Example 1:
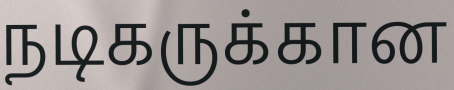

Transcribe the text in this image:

நடிகருக்கான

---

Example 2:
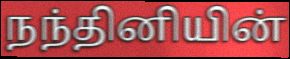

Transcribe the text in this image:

நந்தினியின்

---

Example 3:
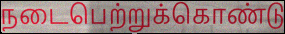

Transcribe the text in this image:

நடைபெற்றுக்கொண்டு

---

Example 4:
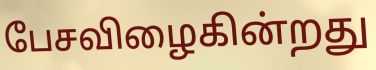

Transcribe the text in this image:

பேசவிழைகின்றது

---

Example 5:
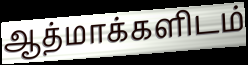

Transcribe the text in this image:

ஆத்மாக்களிடம்